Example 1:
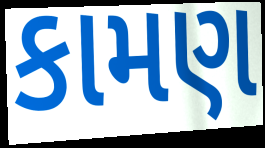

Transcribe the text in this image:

કામણ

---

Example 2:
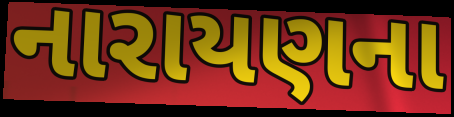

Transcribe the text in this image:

નારાયણના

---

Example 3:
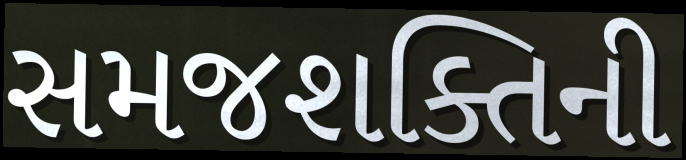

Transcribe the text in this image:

સમજશક્તિની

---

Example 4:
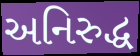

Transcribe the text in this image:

અનિરુદ્ધ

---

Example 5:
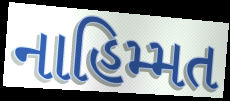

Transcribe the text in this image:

નાહિમ્મત